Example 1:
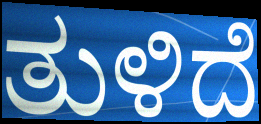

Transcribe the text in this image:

ತುಳಿದೆ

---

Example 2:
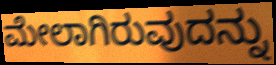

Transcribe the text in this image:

ಮೇಲಾಗಿರುವುದನ್ನು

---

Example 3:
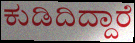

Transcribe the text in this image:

ಕುಡಿದಿದ್ದಾರೆ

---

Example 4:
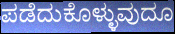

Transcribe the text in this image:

ಪಡೆದುಕೊಳ್ಳುವುದೂ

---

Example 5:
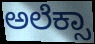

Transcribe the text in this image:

ಅಲೆಕ್ಸಾ